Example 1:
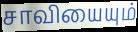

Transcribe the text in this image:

சாவியையும்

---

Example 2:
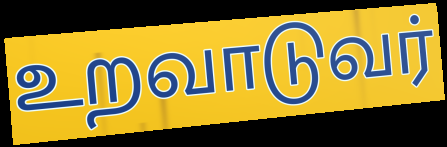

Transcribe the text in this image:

உறவாடுவர்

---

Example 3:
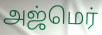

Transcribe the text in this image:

அஜ்மெர்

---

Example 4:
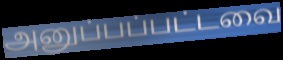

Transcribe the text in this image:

அனுப்பப்பட்டவை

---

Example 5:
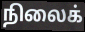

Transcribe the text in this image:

நிலைக்